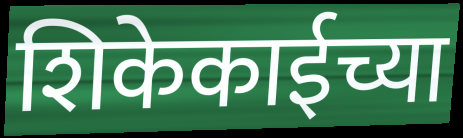
शिकेकाईच्या